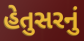
હેતુસરનું